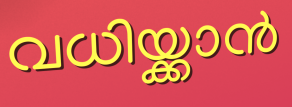
വധിയ്ക്കാൻ